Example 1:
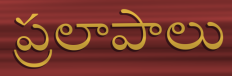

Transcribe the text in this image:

ప్రలాపాలు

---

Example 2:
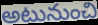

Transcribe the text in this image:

అటునుంచి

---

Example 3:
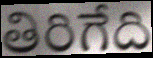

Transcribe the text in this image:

తిరిగేది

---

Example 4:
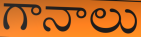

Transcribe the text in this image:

గానాలు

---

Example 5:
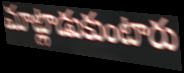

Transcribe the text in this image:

మాట్లాడుకుంటారు